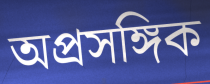
অপ্রসঙ্গিক